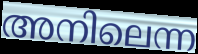
അനിലെന്ന